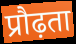
प्रौढ़ता